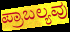
ಪ್ರಾಬಲ್ಯವು